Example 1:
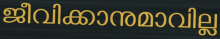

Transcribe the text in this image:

ജീവിക്കാനുമാവില്ല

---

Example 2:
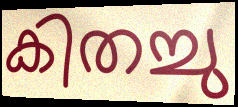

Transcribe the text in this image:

കിതച്ചു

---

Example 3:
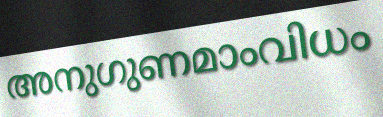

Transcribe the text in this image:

അനുഗുണമാംവിധം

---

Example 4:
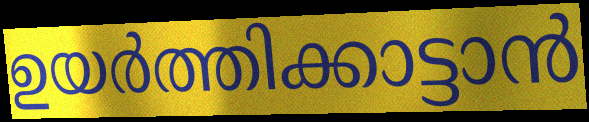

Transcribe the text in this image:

ഉയർത്തിക്കാട്ടാൻ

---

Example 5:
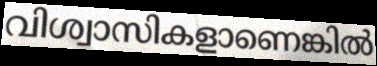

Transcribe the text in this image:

വിശ്വാസികളാണെങ്കിൽ